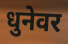
धुनेवर